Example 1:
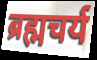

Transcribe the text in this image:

ब्रह्मचर्य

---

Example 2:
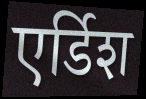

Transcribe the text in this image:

एर्डिश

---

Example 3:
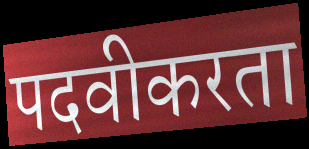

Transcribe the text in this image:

पदवीकरता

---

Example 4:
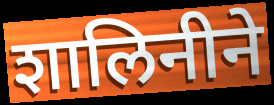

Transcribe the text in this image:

शालिनीने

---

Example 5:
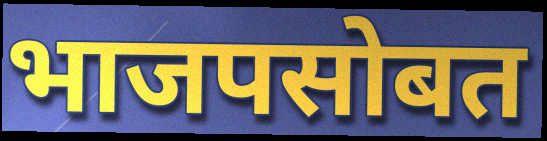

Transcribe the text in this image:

भाजपसोबत